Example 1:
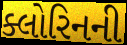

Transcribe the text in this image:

ક્લોરિનની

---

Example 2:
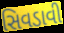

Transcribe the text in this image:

સિવડાવી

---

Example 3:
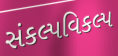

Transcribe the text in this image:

સંકલ્પવિકલ્પ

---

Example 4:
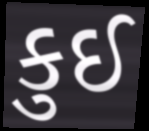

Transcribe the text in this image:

કુઈ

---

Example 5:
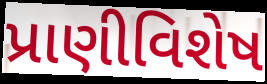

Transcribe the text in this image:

પ્રાણીવિશેષ